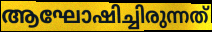
ആഘോഷിച്ചിരുന്നത്